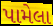
પામેલા